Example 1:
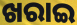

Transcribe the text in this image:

ଖରାଇ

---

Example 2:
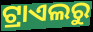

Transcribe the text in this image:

ଟ୍ରାଏଲରୁ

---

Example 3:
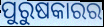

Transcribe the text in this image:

ପୁରୁଷକାରର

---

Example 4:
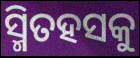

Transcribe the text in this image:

ସ୍ମିତହସକୁ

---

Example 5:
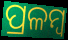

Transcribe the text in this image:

ପ୍ରଳମ୍ବ